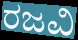
ರಜವಿ